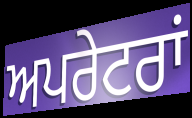
ਅਪਰੇਟਰਾਂ